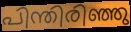
പിന്തിരിഞ്ഞു